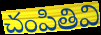
చంపితివి